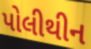
પોલીથીન